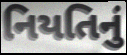
નિયતિનું